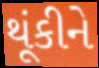
થૂંકીને